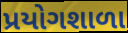
પ્રયોગશાળા